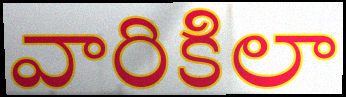
వారికిలా